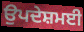
ਉਪਦੇਸ਼ਮਈ